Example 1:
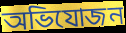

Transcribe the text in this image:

অভিযোজন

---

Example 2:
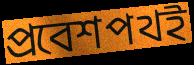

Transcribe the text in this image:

প্রবেশপথই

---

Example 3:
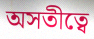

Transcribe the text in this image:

অসতীত্বে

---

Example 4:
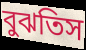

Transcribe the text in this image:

বুঝতিস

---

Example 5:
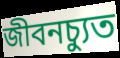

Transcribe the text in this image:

জীবনচ্যুত